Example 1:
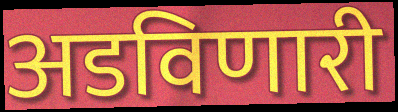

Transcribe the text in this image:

अडविणारी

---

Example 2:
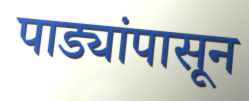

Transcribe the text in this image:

पाड्यांपासून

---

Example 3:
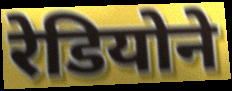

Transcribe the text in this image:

रेडियोने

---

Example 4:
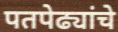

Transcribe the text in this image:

पतपेढ्यांचे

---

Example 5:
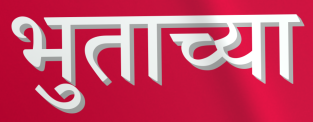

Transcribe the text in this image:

भुताच्या